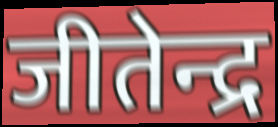
जीतेन्द्र